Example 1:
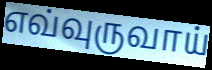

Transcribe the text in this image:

எவ்வுருவாய்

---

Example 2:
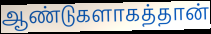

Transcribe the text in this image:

ஆண்டுகளாகத்தான்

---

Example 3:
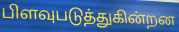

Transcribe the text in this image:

பிளவுபடுத்துகின்றன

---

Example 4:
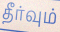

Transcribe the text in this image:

தீர்வும்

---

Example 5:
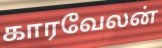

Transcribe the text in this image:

காரவேலன்